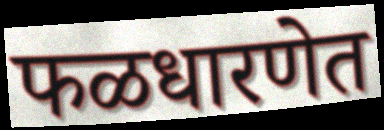
फळधारणेत